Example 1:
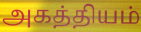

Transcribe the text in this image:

அகத்தியம்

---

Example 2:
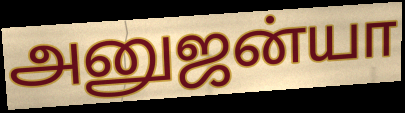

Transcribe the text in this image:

அனுஜன்யா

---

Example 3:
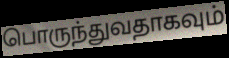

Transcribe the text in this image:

பொருந்துவதாகவும்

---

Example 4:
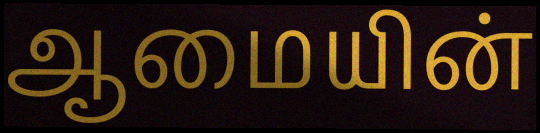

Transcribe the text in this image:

ஆமையின்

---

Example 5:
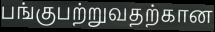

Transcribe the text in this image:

பங்குபற்றுவதற்கான